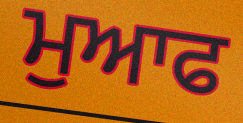
ਮੁਆਫ